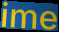
ime